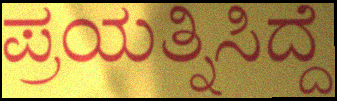
ಪ್ರಯತ್ನಿಸಿದ್ದೆ